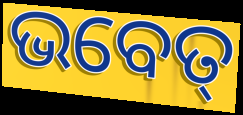
ଭବେତ୍